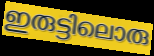
ഇരുട്ടിലൊരു